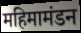
महिमामंडन